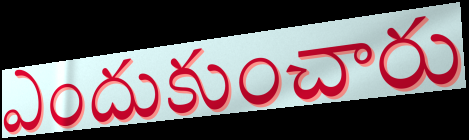
ఎందుకుంచారు